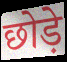
छोड़े